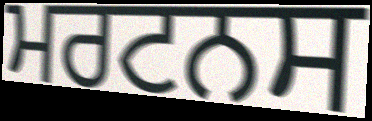
ਮਰਟਨਸ